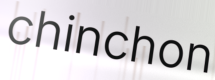
chinchon